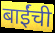
बाईंची